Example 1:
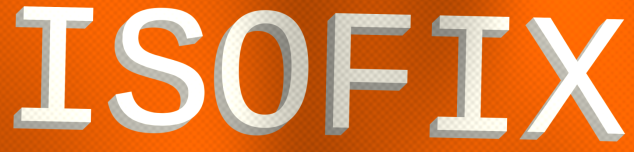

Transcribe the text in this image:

ISOFIX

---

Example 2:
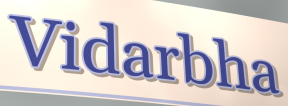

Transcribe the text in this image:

Vidarbha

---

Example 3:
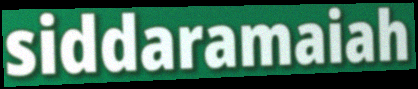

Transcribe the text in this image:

siddaramaiah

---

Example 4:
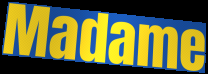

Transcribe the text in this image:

Madame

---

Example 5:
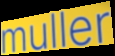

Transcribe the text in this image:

muller